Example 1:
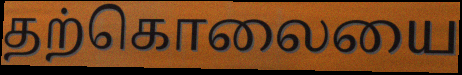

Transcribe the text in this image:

தற்கொலையை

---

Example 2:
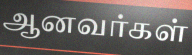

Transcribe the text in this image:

ஆனவர்கள்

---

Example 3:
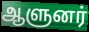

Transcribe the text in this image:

ஆளுனர்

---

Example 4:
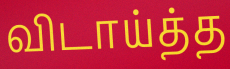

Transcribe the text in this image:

விடாய்த்த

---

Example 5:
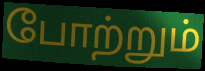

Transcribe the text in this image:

போற்றும்